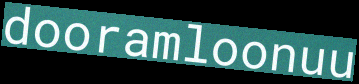
dooramloonuu